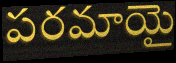
పరమాయై